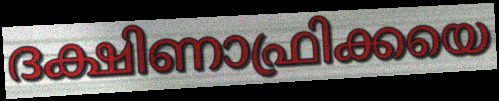
ദക്ഷിണാഫ്രിക്കയെ